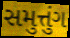
સમુત્તુંગ